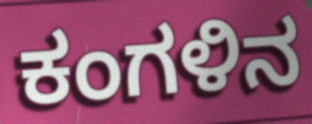
ಕಂಗಳಿನ